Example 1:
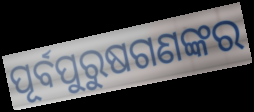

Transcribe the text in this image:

ପୂର୍ବପୁରୁଷଗଣଙ୍କର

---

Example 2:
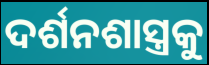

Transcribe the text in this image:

ଦର୍ଶନଶାସ୍ତ୍ରକୁ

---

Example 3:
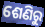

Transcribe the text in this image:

ଶେଣିରୁ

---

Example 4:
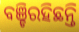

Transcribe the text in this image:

ବଞ୍ଚିରହିଛନ୍ତି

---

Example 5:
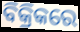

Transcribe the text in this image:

ବିକ୍ରିକରେ